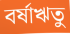
বর্ষাঋতু